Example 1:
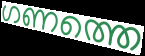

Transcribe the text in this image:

ഗണത്തെ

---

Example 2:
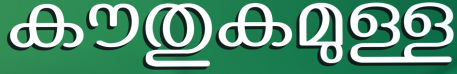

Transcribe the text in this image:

കൗതുകമുള്ള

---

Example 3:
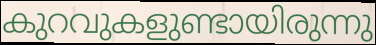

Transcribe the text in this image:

കുറവുകളുണ്ടായിരുന്നു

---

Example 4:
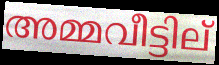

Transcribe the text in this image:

അമ്മവീട്ടില്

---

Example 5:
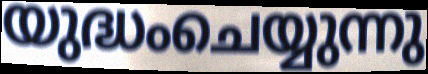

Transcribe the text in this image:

യുദ്ധംചെയ്യുന്നു